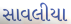
સાવલીયા